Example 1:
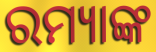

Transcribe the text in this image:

ରମ୍ୟାଙ୍କ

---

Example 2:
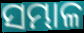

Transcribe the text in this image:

ସମ୍ଭାଳ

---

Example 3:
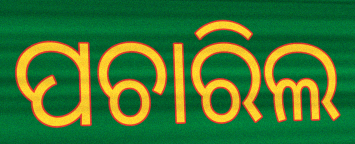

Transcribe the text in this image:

ପଚାରିଲ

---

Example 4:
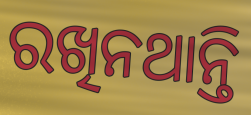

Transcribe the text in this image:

ରଖିନଥାନ୍ତି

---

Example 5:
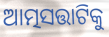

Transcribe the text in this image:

ଆତ୍ମସତ୍ତାଟିକୁ